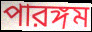
পারঙ্গম